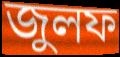
জুলফ